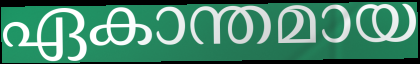
ഏകാന്തമായ